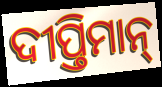
ଦୀପ୍ତିମାନ୍